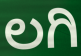
ಲಗಿ